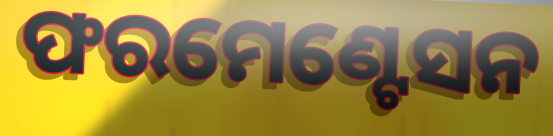
ଫରମେଣ୍ଟେସନ